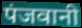
पंजवानी